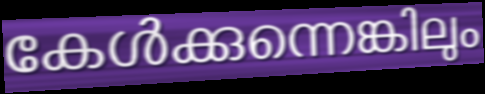
കേൾക്കുന്നെങ്കിലും